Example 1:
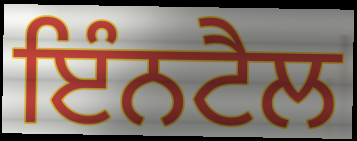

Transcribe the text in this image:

ਇੰਨਟੈਲ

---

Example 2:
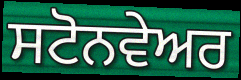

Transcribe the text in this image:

ਸਟੋਨਵੇਅਰ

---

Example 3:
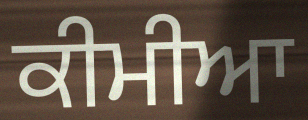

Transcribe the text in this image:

ਕੀਮੀਆ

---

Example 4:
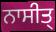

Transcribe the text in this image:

ਨਾਸੀਤ੍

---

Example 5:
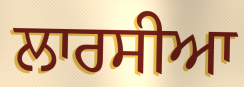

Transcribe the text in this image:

ਲਾਰਸੀਆ